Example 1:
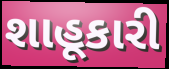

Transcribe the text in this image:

શાહૂકારી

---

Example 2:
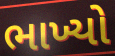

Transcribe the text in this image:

ભાખ્યો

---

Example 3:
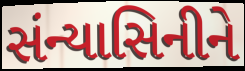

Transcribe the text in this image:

સંન્યાસિનીને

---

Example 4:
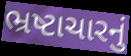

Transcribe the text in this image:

ભ્રષ્ટાચારનું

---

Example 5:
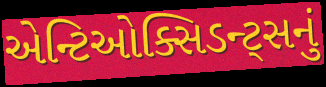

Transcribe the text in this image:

એન્ટિઓક્સિડન્ટ્સનું